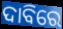
ଦାବିରେ